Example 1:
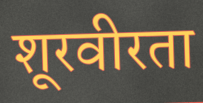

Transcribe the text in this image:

शूरवीरता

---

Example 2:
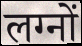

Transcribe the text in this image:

लग्नों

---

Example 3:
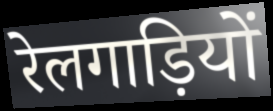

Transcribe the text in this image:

रेलगाड़ियों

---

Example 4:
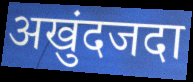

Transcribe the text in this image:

अखुंदजदा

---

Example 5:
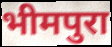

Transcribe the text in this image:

भीमपुरा